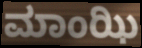
ಮಾಂಝಿ